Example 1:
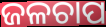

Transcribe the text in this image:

ଜଳଚାପ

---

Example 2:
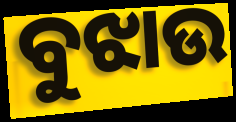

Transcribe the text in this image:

ବୁଝାଉ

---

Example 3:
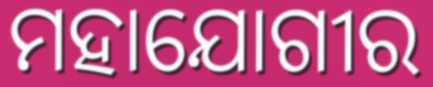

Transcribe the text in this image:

ମହାଯୋଗୀର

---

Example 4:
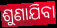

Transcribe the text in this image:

ଶୁଣାଯିବା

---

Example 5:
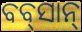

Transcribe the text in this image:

ବବ୍‌ସାନ୍